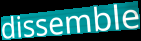
dissemble